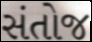
સંતોજ